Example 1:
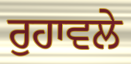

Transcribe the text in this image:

ਰੁਹਾਵਲੇ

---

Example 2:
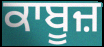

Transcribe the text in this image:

ਕਾਬੂਜ਼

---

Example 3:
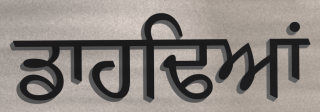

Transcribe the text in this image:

ਡਾਹਢਿਆਂ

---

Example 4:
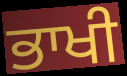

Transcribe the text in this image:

ਭਾਖੀ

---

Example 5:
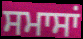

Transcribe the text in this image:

ਸਮਾਸਾਂ